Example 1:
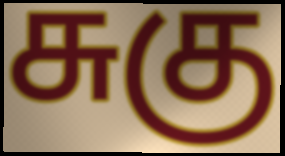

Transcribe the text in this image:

சுகு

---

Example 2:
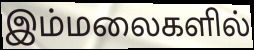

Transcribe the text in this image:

இம்மலைகளில்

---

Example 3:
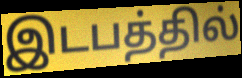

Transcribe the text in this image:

இடபத்தில்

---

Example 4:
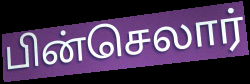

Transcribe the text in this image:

பின்செலார்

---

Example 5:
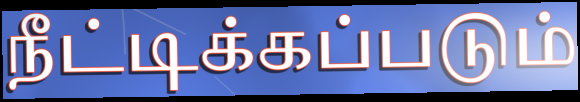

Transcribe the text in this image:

நீட்டிக்கப்படும்